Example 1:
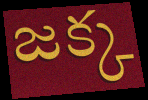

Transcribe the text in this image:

జక్క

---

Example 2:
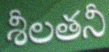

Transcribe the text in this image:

శీలతనీ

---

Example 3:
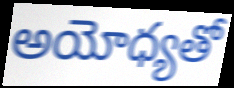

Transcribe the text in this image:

అయోధ్యతో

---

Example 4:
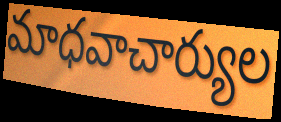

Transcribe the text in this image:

మాధవాచార్యుల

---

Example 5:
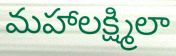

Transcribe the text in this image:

మహాలక్ష్మిలా